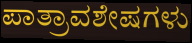
ಪಾತ್ರಾವಶೇಷಗಳು